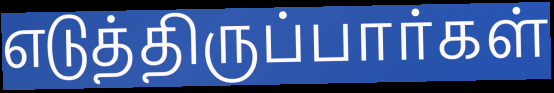
எடுத்திருப்பார்கள்